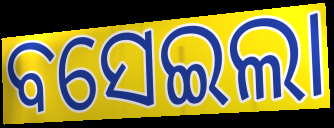
ବସେଇଲା